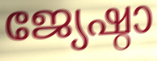
ജ്യേഷ്ഠാ